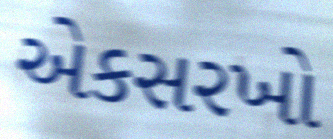
એકસરખો